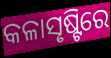
କଳାସୃଷ୍ଟିରେ